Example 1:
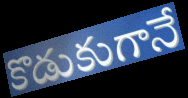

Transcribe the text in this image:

కొడుకుగానే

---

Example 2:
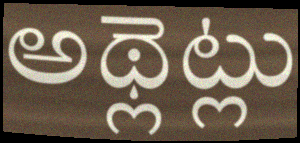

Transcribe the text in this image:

అథ్లెట్లు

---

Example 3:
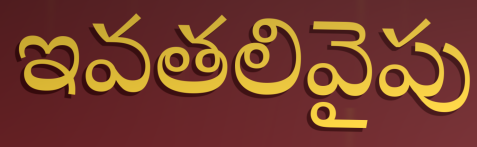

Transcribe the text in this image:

ఇవతలివైపు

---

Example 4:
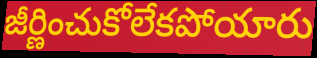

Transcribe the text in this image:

జీర్ణించుకోలేకపోయారు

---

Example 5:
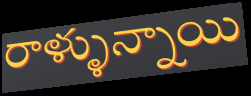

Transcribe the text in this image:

రాళ్ళున్నాయి